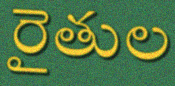
రైతుల